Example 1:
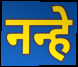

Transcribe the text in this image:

नन्हे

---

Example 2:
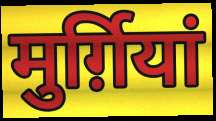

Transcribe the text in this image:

मुर्ग़ियां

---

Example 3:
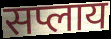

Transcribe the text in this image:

सप्लाय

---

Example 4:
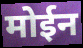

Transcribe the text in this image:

मोईन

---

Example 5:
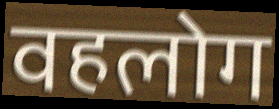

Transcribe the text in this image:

वहलोग